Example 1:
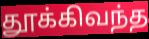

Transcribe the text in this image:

தூக்கிவந்த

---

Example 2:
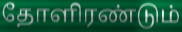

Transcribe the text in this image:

தோளிரண்டும்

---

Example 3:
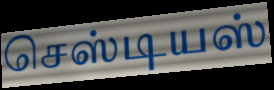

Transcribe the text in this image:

செஸ்டியஸ்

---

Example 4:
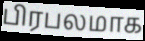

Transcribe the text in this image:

பிரபலமாக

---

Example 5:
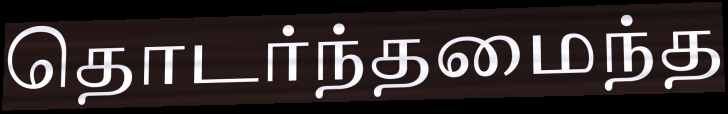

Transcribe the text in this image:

தொடர்ந்தமைந்த